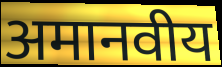
अमानवीय